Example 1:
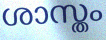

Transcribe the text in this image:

ശാസ്തം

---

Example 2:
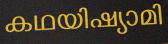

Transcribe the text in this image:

കഥയിഷ്യാമി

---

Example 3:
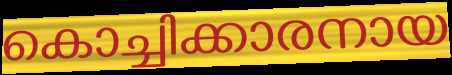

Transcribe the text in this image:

കൊച്ചിക്കാരനായ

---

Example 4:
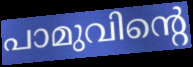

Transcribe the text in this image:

പാമുവിന്റെ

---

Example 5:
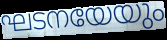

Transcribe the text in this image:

ഘടനയേയും